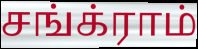
சங்க்ராம்